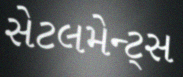
સેટલમેન્ટ્સ